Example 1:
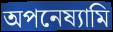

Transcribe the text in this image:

অপনেষ্যামি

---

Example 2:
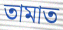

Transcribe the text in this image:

তামাত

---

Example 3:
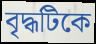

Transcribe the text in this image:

বৃদ্ধটিকে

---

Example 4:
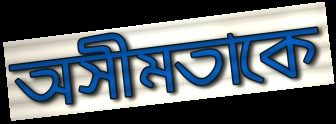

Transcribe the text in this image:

অসীমতাকে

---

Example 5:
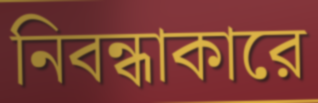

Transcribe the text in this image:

নিবন্ধাকারে